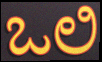
ಒಲಿ